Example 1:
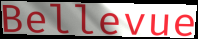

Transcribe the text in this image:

Bellevue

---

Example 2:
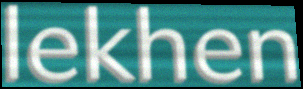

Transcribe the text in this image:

lekhen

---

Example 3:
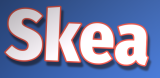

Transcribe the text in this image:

Skea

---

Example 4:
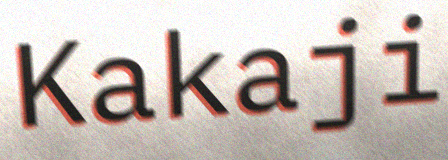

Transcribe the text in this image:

Kakaji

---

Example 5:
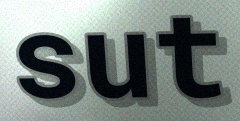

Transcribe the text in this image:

sut